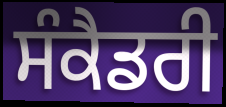
ਸੰਕੈਡਰੀ